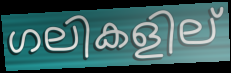
ഗലികളില്